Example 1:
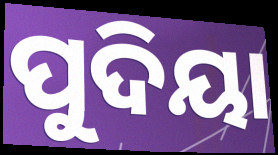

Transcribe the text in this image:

ପୁଦିୟା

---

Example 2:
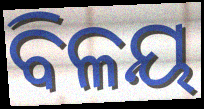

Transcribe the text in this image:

ବିଳୟ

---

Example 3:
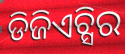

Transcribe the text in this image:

ଡିଜିଏଚ୍ସିର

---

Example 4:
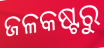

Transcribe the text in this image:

ଜଳକଷ୍ଟରୁ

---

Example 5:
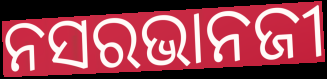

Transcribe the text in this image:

ନସରଭାନଜୀ